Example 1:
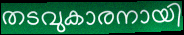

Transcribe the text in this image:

തടവുകാരനായി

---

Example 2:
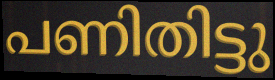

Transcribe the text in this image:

പണിതിട്ടു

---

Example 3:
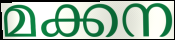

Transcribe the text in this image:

മക്കന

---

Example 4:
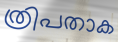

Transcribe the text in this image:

ത്രിപതാക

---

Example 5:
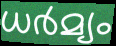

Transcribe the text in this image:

ധർമ്യം